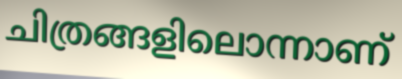
ചിത്രങ്ങളിലൊന്നാണ്